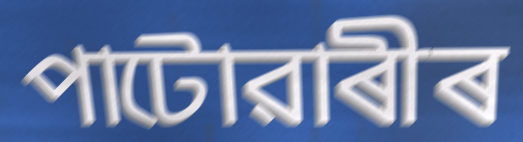
পাটোৱাৰীৰ